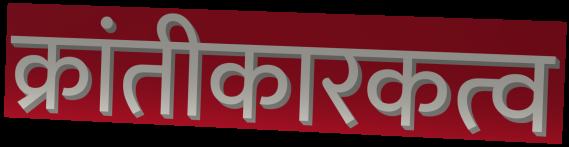
क्रांतीकारकत्व